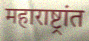
महाराष्ट्रांत